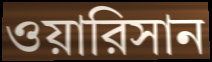
ওয়ারিসান